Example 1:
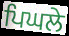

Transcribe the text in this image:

ਪਿਘਲੇ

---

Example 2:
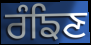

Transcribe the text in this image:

ਰੰਙਿਣ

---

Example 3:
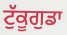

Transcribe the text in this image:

ਟੁੱਕੂਗੁਡਾ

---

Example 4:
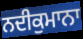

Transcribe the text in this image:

ਨਦੀਕੁਮਾਨਾ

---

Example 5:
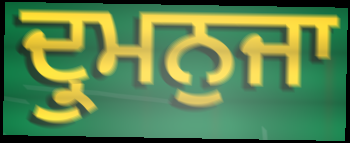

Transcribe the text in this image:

ਦ੍ਰੁਮਨੁਜਾ